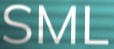
SML